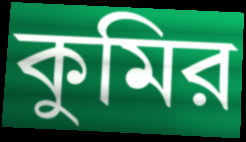
কুমির